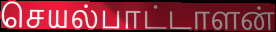
செயல்பாட்டாளன்